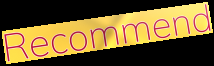
Recommend